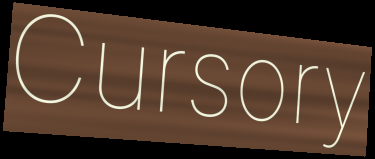
Cursory